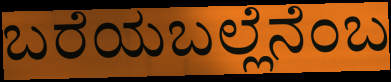
ಬರೆಯಬಲ್ಲೆನೆಂಬ